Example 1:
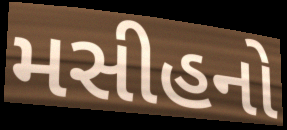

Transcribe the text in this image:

મસીહનો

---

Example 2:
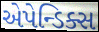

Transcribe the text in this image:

એપેન્ડિક્સ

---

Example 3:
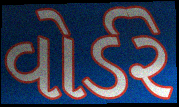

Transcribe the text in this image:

વોર્ડરે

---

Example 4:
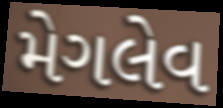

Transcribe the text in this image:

મેગલેવ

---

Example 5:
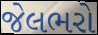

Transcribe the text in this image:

જેલભરો